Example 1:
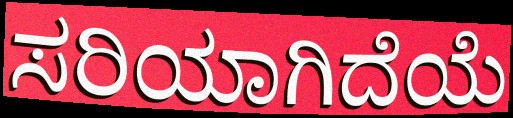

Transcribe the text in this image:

ಸರಿಯಾಗಿದೆಯೆ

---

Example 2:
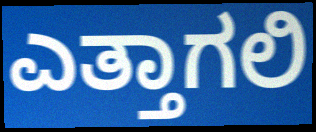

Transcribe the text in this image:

ಎತ್ತಾಗಲಿ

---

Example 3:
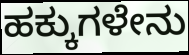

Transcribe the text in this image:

ಹಕ್ಕುಗಳೇನು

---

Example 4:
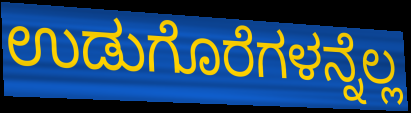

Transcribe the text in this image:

ಉಡುಗೊರೆಗಳನ್ನೆಲ್ಲ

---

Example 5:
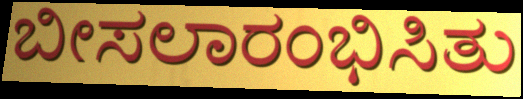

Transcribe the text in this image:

ಬೀಸಲಾರಂಭಿಸಿತು